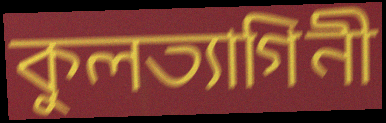
কুলত্যাগিনী